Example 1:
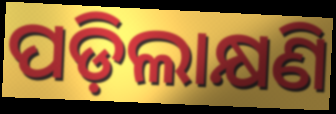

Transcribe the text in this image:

ପଡ଼ିଲାକ୍ଷଣି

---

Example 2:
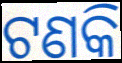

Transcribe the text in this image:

ଟଣକି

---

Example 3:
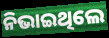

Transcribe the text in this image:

ନିଭାଇଥିଲେ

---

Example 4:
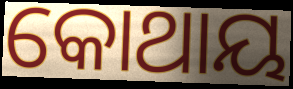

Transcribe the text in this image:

କୋଥାୟ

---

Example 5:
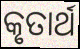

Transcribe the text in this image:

କୃତାର୍ଥ